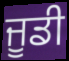
ਜੂਡੀ